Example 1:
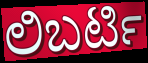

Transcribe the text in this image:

ಲಿಬರ್ಟಿ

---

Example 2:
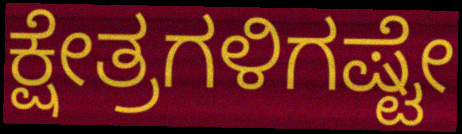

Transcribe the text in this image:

ಕ್ಷೇತ್ರಗಳಿಗಷ್ಟೇ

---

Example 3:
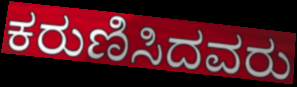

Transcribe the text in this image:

ಕರುಣಿಸಿದವರು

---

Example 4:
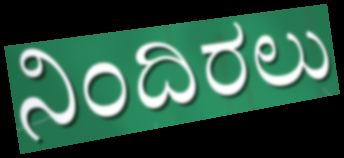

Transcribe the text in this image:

ನಿಂದಿರಲು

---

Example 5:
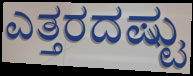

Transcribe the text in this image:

ಎತ್ತರದಷ್ಟು